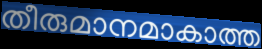
തീരുമാനമാകാത്ത